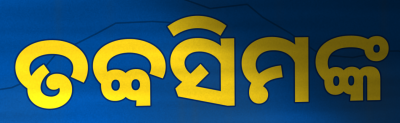
ତବ୍ବସିମଙ୍କ